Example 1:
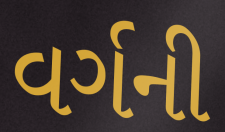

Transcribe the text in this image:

વર્ગની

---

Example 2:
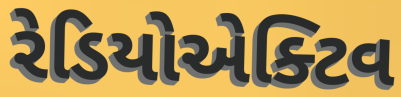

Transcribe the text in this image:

રેડિયોએક્ટિવ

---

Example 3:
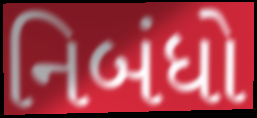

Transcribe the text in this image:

નિબંધો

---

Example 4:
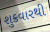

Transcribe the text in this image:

શુક્રવારથી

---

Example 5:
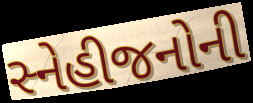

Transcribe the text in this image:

સ્નેહીજનોની